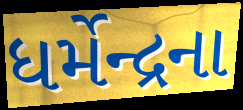
ધર્મેન્દ્રના